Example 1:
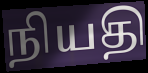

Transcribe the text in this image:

நியதி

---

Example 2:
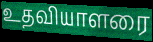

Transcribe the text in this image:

உதவியாளரை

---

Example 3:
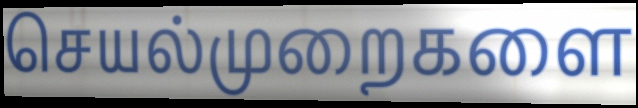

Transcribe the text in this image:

செயல்முறைகளை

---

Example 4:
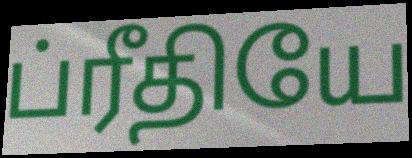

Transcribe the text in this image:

ப்ரீதியே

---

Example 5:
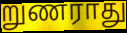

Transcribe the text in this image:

றுணராது